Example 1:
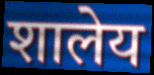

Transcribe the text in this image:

शालेय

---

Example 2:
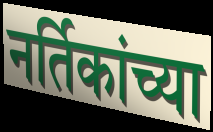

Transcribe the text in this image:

नर्तिकांच्या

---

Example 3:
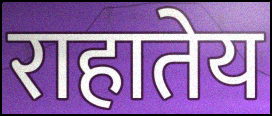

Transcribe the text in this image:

राहातेय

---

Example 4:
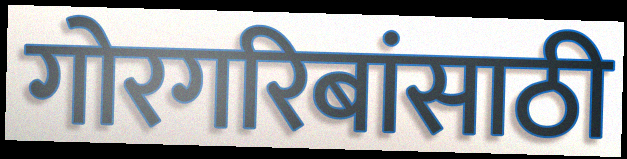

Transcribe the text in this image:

गोरगरिबांसाठी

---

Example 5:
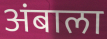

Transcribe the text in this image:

अंबाला